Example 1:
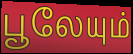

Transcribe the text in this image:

பூலேயும்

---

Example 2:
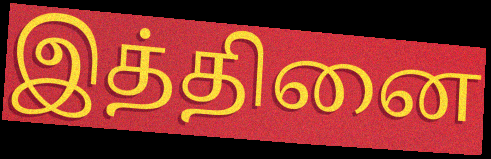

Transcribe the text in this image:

இத்தினை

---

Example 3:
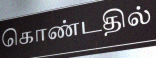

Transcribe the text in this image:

கொண்டதில்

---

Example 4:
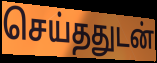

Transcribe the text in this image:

செய்ததுடன்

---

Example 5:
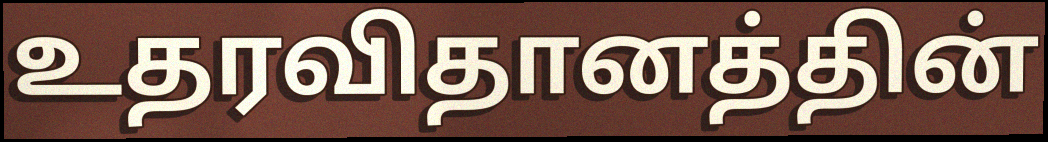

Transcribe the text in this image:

உதரவிதானத்தின்